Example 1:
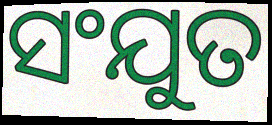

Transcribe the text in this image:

ସଂଯୁତ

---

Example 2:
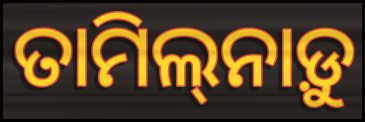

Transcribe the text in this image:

ତାମିଲ୍‌ନାଡ଼ୁ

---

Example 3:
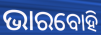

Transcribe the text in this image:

ଭାରବୋହି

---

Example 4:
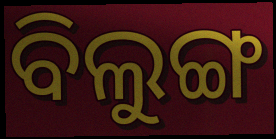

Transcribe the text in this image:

ବିଲୁଙ୍ଗ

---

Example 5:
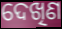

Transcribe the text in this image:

ଦେଖିଣ